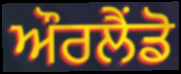
ਔਰਲੈਂਡੋ